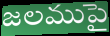
జలముపై